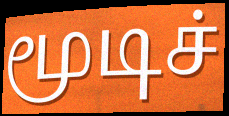
மூடிச்